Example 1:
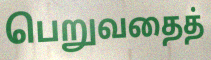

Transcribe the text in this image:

பெறுவதைத்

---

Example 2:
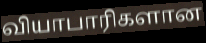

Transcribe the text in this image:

வியாபாரிகளான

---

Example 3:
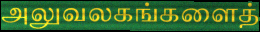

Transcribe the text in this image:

அலுவலகங்களைத்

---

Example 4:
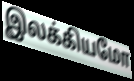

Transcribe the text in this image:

இலக்கியமோ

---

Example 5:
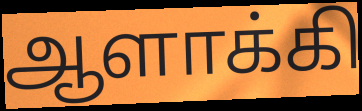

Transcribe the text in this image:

ஆளாக்கி